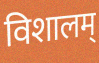
विशालम्